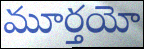
మూర్తయో